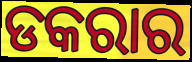
ଡକରାର